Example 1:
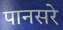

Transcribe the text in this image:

पानसरे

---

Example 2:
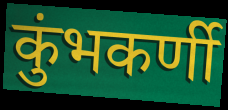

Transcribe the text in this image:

कुंभकर्णी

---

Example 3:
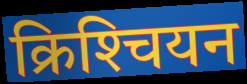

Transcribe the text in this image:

क्रिश्‍चियन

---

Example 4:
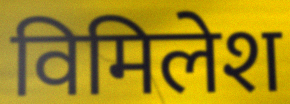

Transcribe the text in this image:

विमिलेश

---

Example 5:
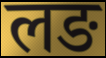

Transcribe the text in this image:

लङ